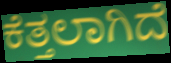
ಕೆತ್ತಲಾಗಿದೆ